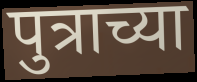
पुत्राच्या